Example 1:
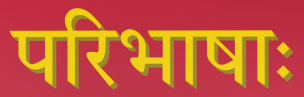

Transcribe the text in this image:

परिभाषाः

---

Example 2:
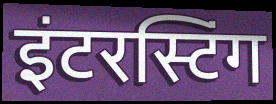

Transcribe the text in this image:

इंटरस्टिंग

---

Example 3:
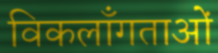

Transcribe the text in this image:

विकलाँगताओं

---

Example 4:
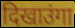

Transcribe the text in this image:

दिखाउंगा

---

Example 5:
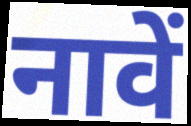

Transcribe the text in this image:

नावें